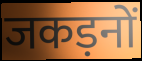
जकड़नों